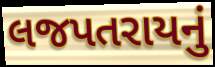
લજપતરાયનું